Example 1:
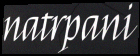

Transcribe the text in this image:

natrpani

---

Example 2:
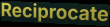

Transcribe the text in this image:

Reciprocate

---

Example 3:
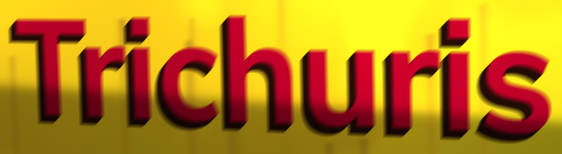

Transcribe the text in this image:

Trichuris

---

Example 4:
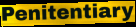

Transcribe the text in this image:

Penitentiary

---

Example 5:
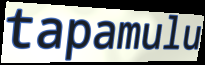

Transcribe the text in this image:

tapamulu